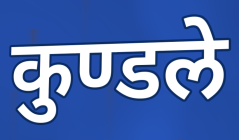
कुण्डले